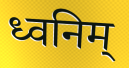
ध्वनिम्